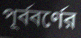
পূর্ববর্ণের